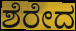
ಶೆರೇದ